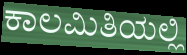
ಕಾಲಮಿತಿಯಲ್ಲಿ